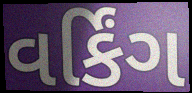
વર્કિંગ